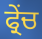
ਫ੍ਰੇਂਚ